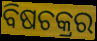
ବିଷଚକ୍ରର